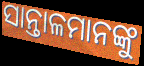
ସାନ୍ତାଳମାନଙ୍କୁ